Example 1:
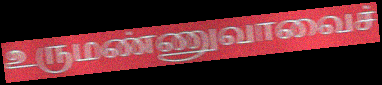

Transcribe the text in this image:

உருமண்ணுவாவைச்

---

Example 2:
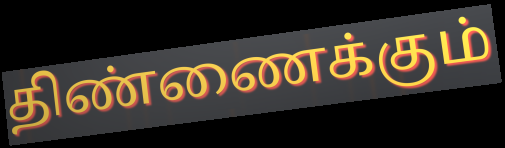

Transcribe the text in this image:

திண்ணைக்கும்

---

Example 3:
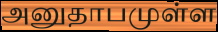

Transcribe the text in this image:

அனுதாபமுள்ள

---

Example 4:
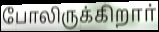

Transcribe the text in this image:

போலிருக்கிறார்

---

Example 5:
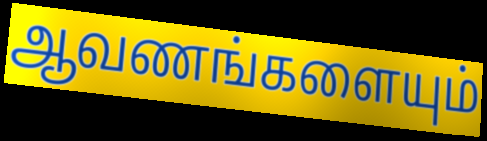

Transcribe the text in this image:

ஆவணங்களையும்